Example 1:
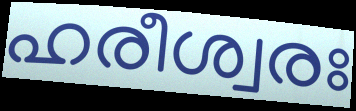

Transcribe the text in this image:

ഹരീശ്വരഃ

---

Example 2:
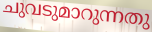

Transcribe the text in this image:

ചുവടുമാറുന്നതു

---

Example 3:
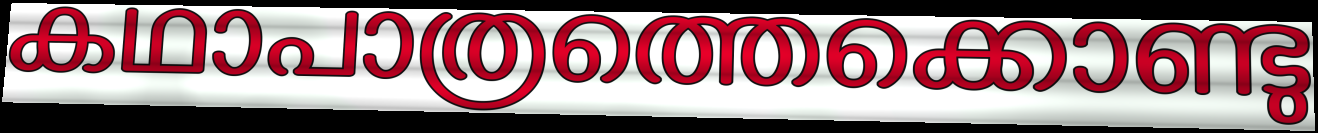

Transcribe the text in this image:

കഥാപാത്രത്തെക്കൊണ്ടു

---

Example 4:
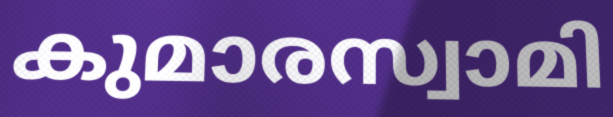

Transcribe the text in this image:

കുമാരസ്വാമി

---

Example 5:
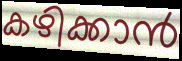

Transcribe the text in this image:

കഴിക്കാൻ